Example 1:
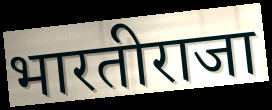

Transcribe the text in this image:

भारतीराजा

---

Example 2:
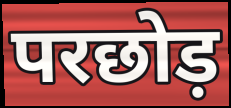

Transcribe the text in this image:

परछोड़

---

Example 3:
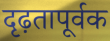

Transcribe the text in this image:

दृढ़तापूर्वक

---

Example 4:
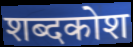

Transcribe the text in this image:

शब्दकोश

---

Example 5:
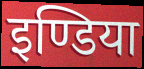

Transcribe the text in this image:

इण्डिया